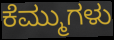
ಕೆಮ್ಮುಗಳು